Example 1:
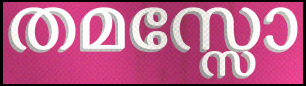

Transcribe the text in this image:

തമസ്സോ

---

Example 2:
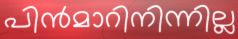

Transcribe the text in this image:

പിൻമാറിനിന്നില്ല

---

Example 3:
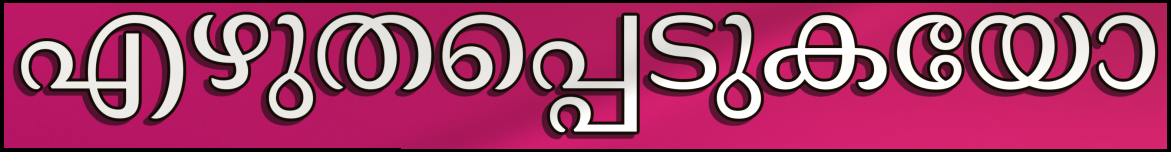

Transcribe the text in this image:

എഴുതപ്പെടുകയോ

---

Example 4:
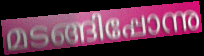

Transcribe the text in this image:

മടങ്ങിപ്പോന്നു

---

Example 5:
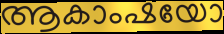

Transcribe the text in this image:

ആകാംഷയോ